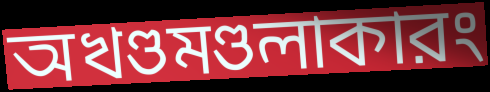
অখণ্ডমণ্ডলাকারং